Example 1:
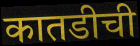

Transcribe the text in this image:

कातडीची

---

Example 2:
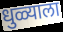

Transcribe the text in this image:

धुळ्याला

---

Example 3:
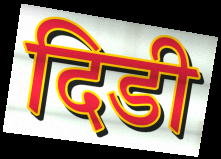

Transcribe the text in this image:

दिडी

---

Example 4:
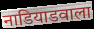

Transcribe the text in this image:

नाडियाडवाला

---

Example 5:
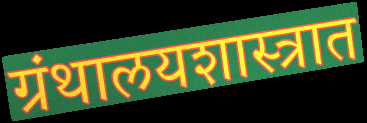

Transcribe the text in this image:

ग्रंथालयशास्त्रात